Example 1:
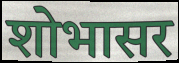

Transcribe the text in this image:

शोभासर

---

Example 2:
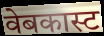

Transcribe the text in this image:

वेबकास्ट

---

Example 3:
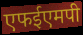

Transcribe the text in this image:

एफईएमपी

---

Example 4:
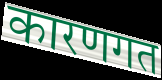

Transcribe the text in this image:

कारणगत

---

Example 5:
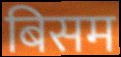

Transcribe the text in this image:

बिसम